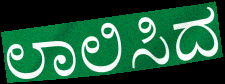
ಲಾಲಿಸಿದ